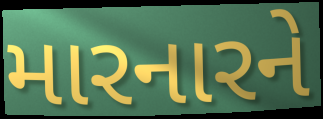
મારનારને